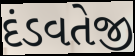
દંડવતેજી